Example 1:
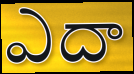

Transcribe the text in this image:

ఎదా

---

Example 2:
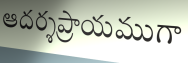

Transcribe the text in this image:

ఆదర్శప్రాయముగా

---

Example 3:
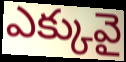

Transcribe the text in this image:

ఎక్కువై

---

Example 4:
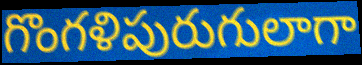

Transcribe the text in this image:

గొంగళిపురుగులాగా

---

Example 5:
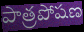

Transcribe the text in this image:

పాత్రపోషణ